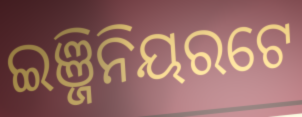
ଇଞ୍ଜିନିୟରଟେ